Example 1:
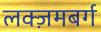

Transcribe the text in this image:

लक्ज़मबर्ग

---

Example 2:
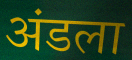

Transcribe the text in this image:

अंडला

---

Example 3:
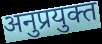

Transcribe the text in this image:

अनुप्रयुक्त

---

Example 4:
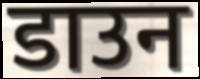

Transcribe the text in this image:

डाउन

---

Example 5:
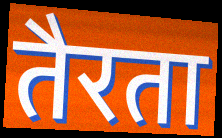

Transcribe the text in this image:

तैरता